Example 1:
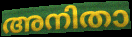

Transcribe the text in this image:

അനിതാ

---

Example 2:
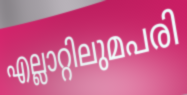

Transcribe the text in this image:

എല്ലാറ്റിലുമപരി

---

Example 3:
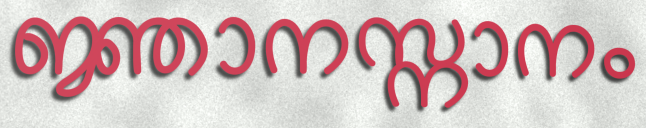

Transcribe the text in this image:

ജ്ഞാനസ്നാനം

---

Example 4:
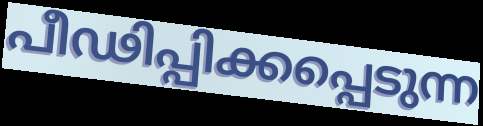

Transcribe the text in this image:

പീഢിപ്പിക്കപ്പെടുന്ന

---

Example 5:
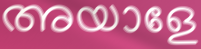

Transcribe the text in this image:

അയാളേ